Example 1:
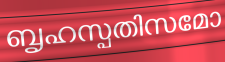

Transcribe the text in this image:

ബൃഹസ്പതിസമോ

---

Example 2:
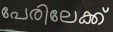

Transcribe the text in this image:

പേരിലേക്ക്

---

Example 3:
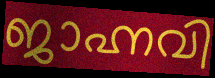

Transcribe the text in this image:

ജാഹ്നവി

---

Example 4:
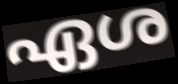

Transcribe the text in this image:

ഏശ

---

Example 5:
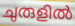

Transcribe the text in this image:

ചുരുളിൽ